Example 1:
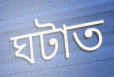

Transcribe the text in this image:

ঘটাত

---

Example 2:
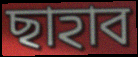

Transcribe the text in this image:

ছাহাব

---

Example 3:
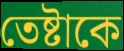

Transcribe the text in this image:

তেষ্টাকে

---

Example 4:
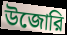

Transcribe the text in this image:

উজোরি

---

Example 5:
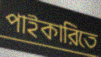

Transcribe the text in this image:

পাইকারিতে